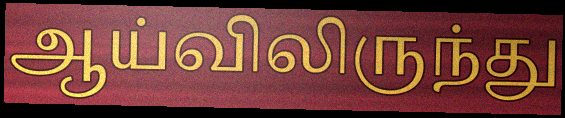
ஆய்விலிருந்து